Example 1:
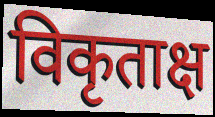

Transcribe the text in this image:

विकृताक्ष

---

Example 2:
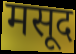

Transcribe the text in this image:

मसूद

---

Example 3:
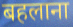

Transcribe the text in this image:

बहलाना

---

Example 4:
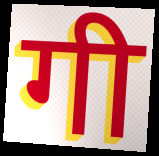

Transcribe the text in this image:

गी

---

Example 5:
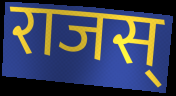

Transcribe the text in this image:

राजस्